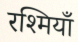
रश्मियाँ